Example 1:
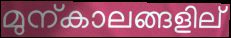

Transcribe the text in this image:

മുന്കാലങ്ങളില്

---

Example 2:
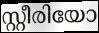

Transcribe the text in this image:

സ്റ്റീരിയോ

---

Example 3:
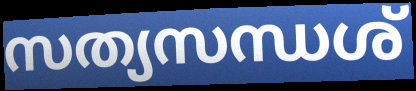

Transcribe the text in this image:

സത്യസന്ധശ്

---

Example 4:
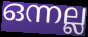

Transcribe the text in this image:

ഒന്നല്ല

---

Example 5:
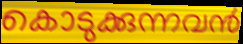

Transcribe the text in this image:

കൊടുക്കുന്നവൻ